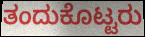
ತಂದುಕೊಟ್ಟರು